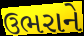
ઉભરાને